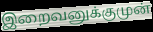
இறைவனுக்குமுன்